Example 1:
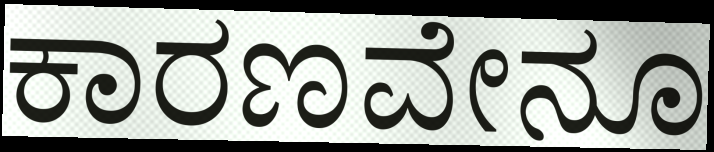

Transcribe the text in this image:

ಕಾರಣವೇನೂ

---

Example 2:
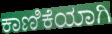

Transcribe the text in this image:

ಕಾಣಿಕೆಯಾಗಿ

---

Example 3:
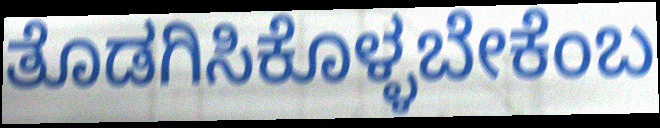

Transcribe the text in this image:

ತೊಡಗಿಸಿಕೊಳ್ಳಬೇಕೆಂಬ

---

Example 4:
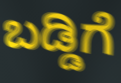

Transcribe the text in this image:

ಬಡ್ಡಿಗೆ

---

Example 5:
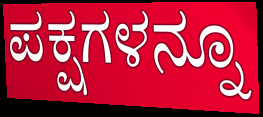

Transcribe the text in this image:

ಪಕ್ಷಗಳನ್ನೂ